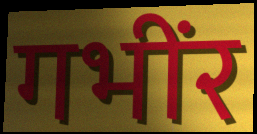
गभींर